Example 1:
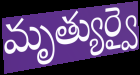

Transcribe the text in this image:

మృత్యుర్వై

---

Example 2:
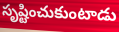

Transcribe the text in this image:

సృష్టించుకుంటాడు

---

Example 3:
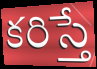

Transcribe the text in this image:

కరిస్తే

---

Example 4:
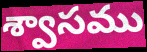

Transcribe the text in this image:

శ్వాసము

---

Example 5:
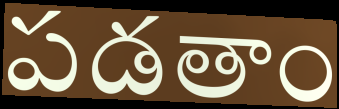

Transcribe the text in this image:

పడతాం